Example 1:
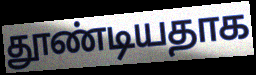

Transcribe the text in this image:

தூண்டியதாக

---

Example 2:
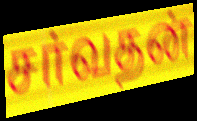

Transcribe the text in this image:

சர்வதன்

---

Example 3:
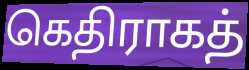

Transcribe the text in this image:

கெதிராகத்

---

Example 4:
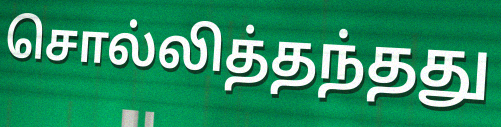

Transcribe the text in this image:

சொல்லித்தந்தது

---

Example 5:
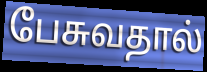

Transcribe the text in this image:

பேசுவதால்